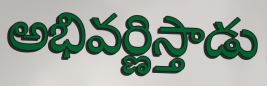
అభివర్ణిస్తాడు